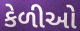
કેળીઓ